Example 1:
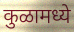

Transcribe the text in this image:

कुळामध्ये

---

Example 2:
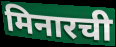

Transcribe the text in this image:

मिनारची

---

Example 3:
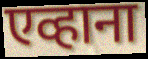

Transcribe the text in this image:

एव्हाना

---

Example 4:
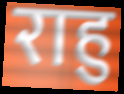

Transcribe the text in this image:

राहु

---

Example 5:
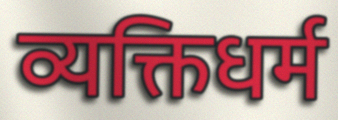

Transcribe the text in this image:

व्यक्तिधर्म